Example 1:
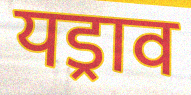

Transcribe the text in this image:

यड्राव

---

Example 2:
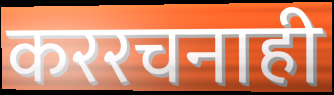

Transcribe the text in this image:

कररचनाही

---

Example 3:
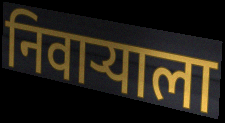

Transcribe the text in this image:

निवाऱ्याला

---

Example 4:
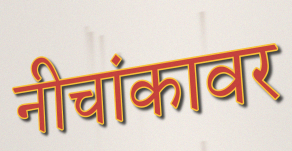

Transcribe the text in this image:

नीचांकावर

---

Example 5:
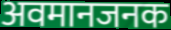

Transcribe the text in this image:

अवमानजनक